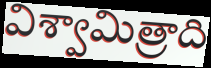
విశ్వామిత్రాది